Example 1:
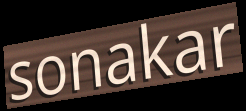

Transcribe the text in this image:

sonakar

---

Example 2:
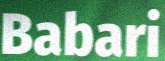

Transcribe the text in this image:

Babari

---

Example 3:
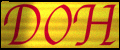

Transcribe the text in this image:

DOH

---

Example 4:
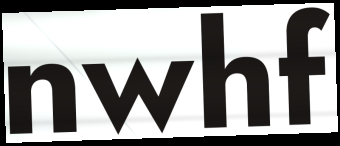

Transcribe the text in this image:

nwhf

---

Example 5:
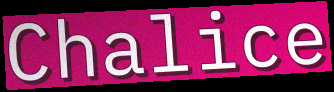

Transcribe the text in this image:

Chalice